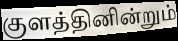
குளத்தினின்றும்